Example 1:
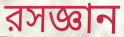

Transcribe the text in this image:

রসজ্ঞান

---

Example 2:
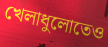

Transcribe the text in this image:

খেলাধুলোতেও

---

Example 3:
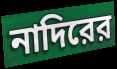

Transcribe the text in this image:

নাদিরের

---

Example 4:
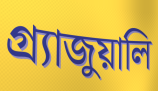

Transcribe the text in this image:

গ্র্যাজুয়ালি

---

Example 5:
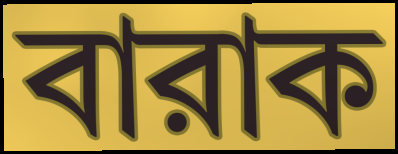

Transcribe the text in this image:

বারাক